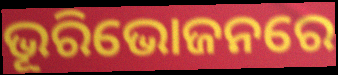
ଭୂରିଭୋଜନରେ